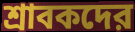
শ্রাবকদের